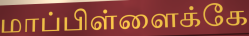
மாப்பிள்ளைக்கே